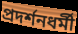
প্রদর্শনধর্মী